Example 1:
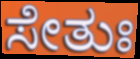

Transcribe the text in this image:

ಸೇತುಃ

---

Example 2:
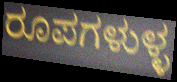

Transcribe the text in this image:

ರೂಪಗಳುಳ್ಳ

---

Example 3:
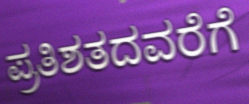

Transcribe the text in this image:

ಪ್ರತಿಶತದವರೆಗೆ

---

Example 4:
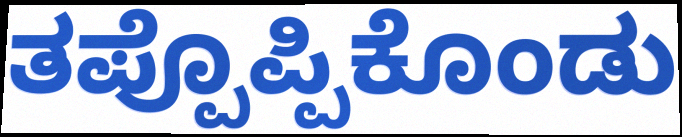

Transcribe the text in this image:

ತಪ್ಪೊಪ್ಪಿಕೊಂಡು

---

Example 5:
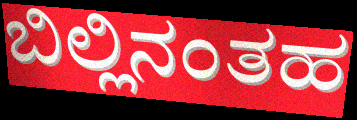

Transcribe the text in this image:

ಬಿಲ್ಲಿನಂತಹ